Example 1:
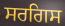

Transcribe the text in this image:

ਸਰਗਿਸ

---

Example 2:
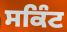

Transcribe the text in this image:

ਸਕਿੰਟ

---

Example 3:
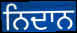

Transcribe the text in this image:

ਨਿਦਾਨ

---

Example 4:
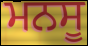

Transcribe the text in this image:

ਮਨਸੂ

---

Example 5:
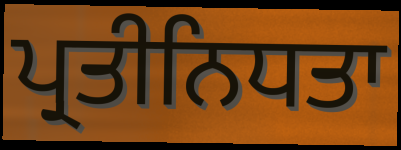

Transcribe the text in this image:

ਪ੍ਰਤੀਨਿਧਤਾ